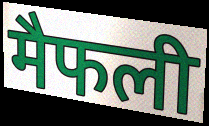
मैफली